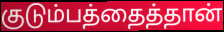
குடும்பத்தைத்தான்